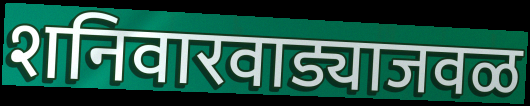
शनिवारवाड्याजवळ